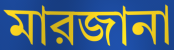
মারজানা